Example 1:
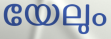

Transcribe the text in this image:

യേലും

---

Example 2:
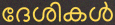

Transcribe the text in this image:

ദേശികൾ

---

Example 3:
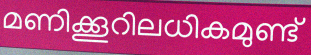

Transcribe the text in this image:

മണിക്കൂറിലധികമുണ്ട്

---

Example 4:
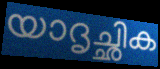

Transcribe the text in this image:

യാദൃച്ഛിക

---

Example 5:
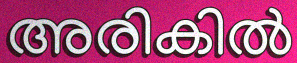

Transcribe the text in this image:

അരികിൽ